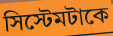
সিস্টেমটাকে